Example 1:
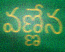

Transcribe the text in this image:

వణ్ణేన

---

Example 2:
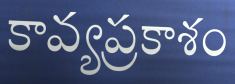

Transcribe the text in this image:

కావ్యప్రకాశం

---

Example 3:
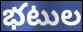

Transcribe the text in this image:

భటుల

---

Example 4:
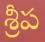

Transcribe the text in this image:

శ్రీప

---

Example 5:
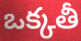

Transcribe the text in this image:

ఒక్కతీ